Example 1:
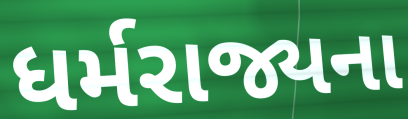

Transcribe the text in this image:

ધર્મરાજ્યના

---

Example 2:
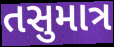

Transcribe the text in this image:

તસુમાત્ર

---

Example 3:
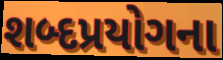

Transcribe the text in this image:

શબ્દપ્રયોગના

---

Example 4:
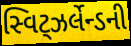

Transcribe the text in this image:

સ્વિટ્ઝર્લેન્ડની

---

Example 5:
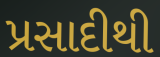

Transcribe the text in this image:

પ્રસાદીથી